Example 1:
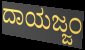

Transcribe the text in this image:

ದಾಯಜ್ಜಂ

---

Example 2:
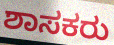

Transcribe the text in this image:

ಶಾಸಕರು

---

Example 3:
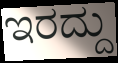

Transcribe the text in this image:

ಇರದ್ದು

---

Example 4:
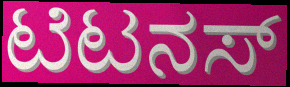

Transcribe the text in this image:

ಟೆಟನಸ್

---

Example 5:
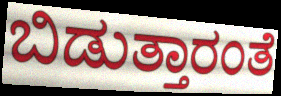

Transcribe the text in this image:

ಬಿಡುತ್ತಾರಂತೆ